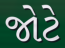
જોટે